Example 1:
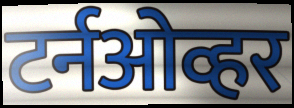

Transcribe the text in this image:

टर्नओव्हर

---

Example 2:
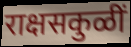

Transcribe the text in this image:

राक्षसकुळीं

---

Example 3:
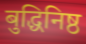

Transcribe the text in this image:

बुद्धिनिष्ठ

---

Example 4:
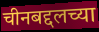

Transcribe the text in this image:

चीनबद्दलच्या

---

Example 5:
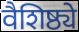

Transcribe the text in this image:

वैशिष्ठ्ये